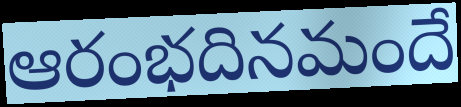
ఆరంభదినమందే